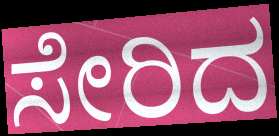
ಸೇರಿದ